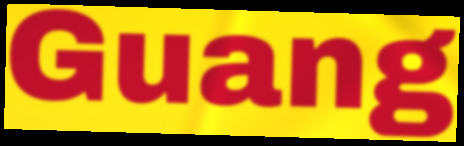
Guang